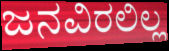
ಜನವಿರಲಿಲ್ಲ